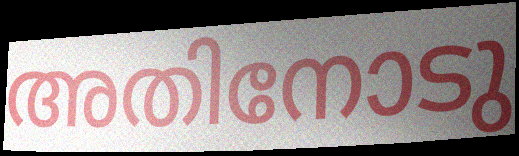
അതിനോടു